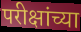
परीक्षांच्या